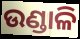
ଉଣ୍ଡାଳି